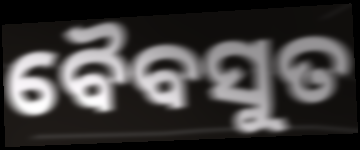
ବୈବସୁତ